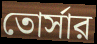
তোর্সার